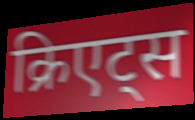
क्रिएट्स